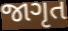
જાગૃત